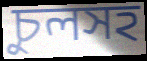
চুলসহ